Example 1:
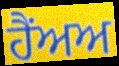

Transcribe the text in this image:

ਹੈਂਅਅ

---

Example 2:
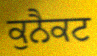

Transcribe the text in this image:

ਕੁਨੈਕਟ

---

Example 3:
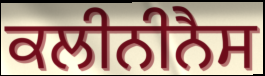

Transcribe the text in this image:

ਕਲੀਨੀਨੈਸ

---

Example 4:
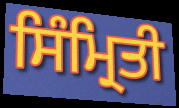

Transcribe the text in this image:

ਸਿੰਮ੍ਰਿਤੀ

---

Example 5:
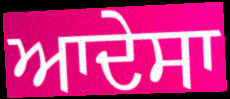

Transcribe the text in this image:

ਆਦੇਸਾ